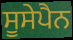
ਸੂਸੇਪੈਨ